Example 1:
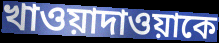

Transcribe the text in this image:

খাওয়াদাওয়াকে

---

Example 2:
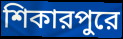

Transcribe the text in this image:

শিকারপুরে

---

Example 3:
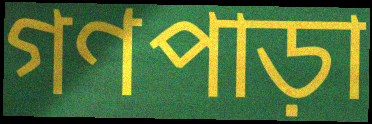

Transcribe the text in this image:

গণপাড়া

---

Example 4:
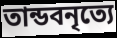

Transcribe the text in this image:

তান্ডবনৃত্যে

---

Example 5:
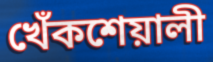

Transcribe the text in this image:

খেঁকশেয়ালী